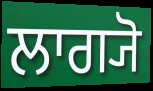
ਲਾਗ੍ਯੋ